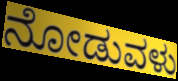
ನೋಡುವಳು